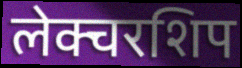
लेक्चरशिप